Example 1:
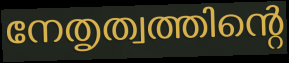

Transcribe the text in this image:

നേതൃത്വത്തിന്റെ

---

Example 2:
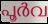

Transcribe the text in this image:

പൂർവ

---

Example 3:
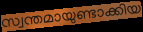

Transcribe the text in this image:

സ്വന്തമായുണ്ടാക്കിയ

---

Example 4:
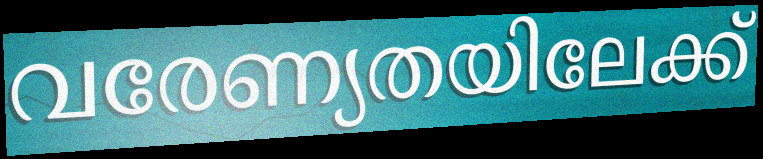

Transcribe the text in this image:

വരേണ്യതയിലേക്ക്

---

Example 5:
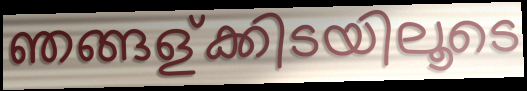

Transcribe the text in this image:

ഞങ്ങള്ക്കിടയിലൂടെ